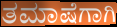
ತಮಾಷೆಗಾಗಿ